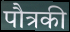
पौत्रकी